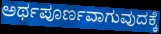
ಅರ್ಥಪೂರ್ಣವಾಗುವುದಕ್ಕೆ